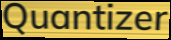
Quantizer